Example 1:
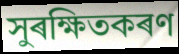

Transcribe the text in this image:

সুৰক্ষিতকৰণ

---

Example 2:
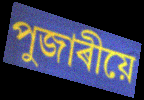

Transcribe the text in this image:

পুজাৰীয়ে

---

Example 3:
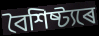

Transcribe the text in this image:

বৈশিষ্ট্যৰে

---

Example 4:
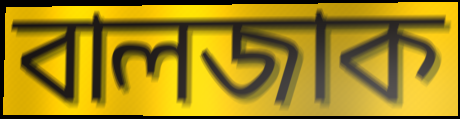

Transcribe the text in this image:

বালজাক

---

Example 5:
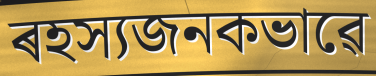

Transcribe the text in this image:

ৰহস্যজনকভাৱে